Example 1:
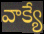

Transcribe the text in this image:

వాక్యే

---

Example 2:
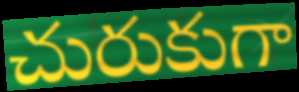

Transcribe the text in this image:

చురుకుగా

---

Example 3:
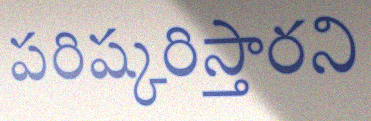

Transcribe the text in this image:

పరిష్కరిస్తారని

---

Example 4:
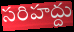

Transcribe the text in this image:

సరిహద్దు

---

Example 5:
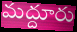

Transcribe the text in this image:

మద్దూరు